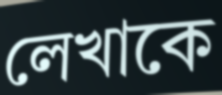
লেখাকে